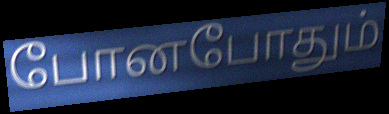
போனபோதும்